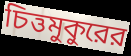
চিত্তমুকুরের